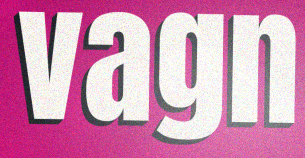
vagn